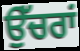
ਉੱਚਰਾਂ